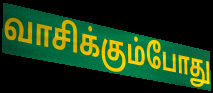
வாசிக்கும்போது